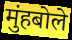
मुंहबोले